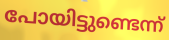
പോയിട്ടുണ്ടെന്ന്